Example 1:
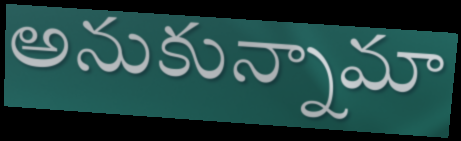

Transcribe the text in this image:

అనుకున్నామా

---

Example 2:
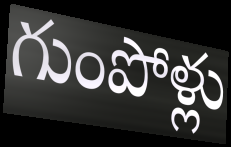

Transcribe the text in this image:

గుంపోళ్లు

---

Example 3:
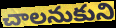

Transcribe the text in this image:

చాలనుకుని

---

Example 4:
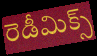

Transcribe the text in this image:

రెడీమిక్స్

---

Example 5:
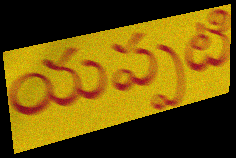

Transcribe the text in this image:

యప్పటి